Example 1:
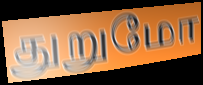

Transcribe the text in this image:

துறுமோ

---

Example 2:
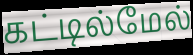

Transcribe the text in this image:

கட்டில்மேல்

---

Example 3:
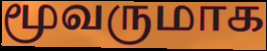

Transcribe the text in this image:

மூவருமாக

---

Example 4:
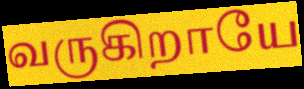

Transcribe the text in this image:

வருகிறாயே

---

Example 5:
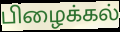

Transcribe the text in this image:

பிழைக்கல்